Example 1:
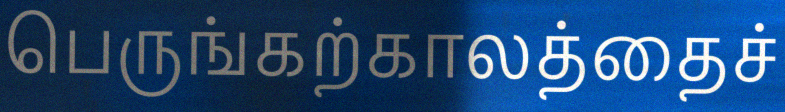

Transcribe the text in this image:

பெருங்கற்காலத்தைச்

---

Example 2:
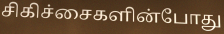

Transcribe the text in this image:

சிகிச்சைகளின்போது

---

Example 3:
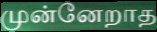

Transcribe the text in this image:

முன்னேறாத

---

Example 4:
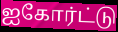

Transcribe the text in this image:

ஐகோர்ட்டு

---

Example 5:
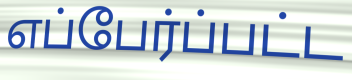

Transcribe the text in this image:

எப்பேர்ப்பட்ட